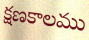
క్షణకాలము